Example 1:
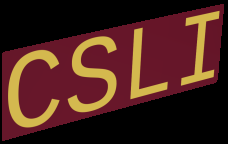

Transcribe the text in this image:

CSLI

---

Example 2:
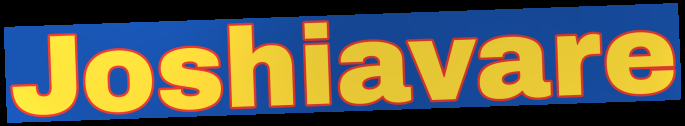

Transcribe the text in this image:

Joshiavare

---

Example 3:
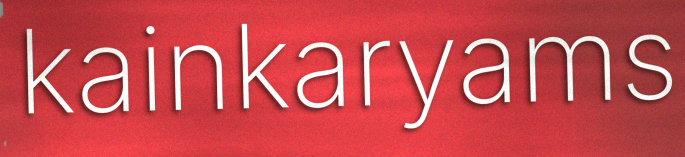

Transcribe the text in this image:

kainkaryams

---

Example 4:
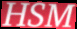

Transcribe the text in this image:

HSM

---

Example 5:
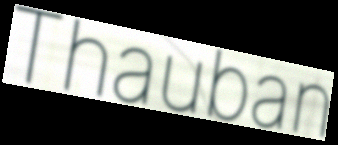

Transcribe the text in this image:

Thauban